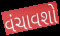
વંચાવશો